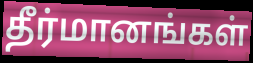
தீர்மானங்கள்